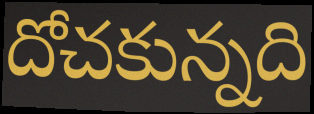
దోచకున్నది